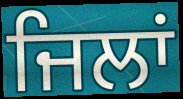
ਜਿਲਾਂ